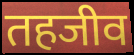
तहजीव